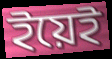
ইয়েই